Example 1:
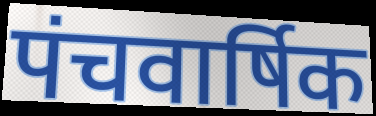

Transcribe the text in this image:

पंचवार्षिक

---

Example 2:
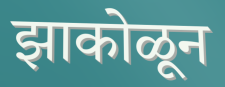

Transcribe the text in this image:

झाकोळून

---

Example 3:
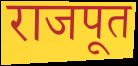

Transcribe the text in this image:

राजपूत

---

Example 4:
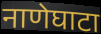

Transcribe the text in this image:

नाणेघाटा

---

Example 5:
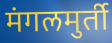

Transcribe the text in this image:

मंगलमुर्ती